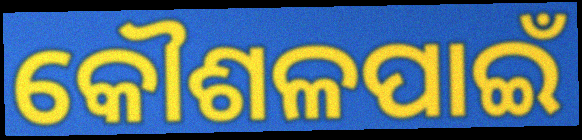
କୌଶଳପାଇଁ